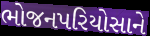
ભોજનપરિયોસાને